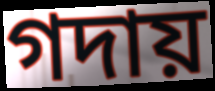
গদায়